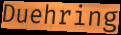
Duehring